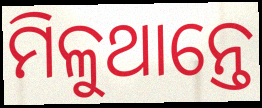
ମିଳୁଥାନ୍ତେ